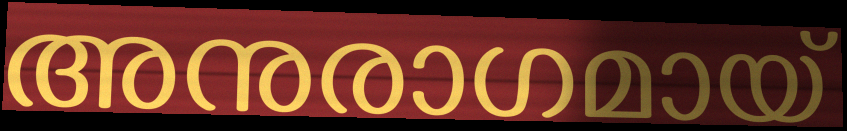
അനുരാഗമായ്